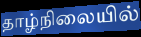
தாழ்நிலையில்